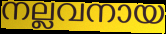
നല്ലവനായ